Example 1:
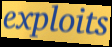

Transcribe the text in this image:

exploits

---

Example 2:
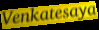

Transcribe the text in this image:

Venkatesaya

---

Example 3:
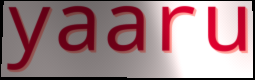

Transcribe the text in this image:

yaaru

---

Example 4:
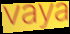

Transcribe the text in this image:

vaya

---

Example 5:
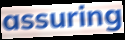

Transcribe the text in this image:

assuring